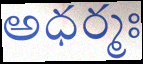
అధర్మః